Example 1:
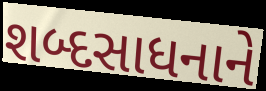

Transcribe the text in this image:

શબ્દસાધનાને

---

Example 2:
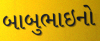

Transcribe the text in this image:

બાબુભાઇનો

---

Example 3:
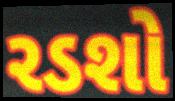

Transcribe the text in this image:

રડશો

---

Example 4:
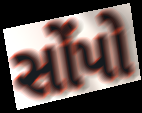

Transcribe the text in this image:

સોંપો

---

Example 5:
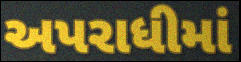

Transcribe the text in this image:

અપરાધીમાં